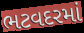
ભટવદરમાં